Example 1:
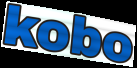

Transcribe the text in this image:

kobo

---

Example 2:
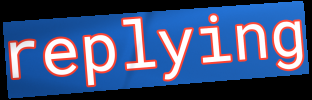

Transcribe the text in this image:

replying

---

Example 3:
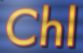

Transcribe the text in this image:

Chl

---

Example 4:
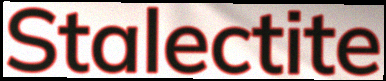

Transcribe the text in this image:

Stalectite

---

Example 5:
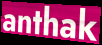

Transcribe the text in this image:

anthak